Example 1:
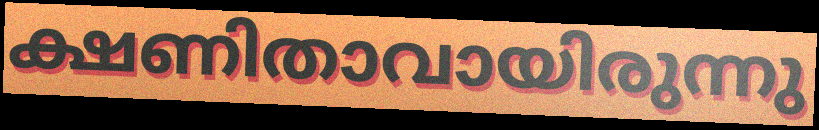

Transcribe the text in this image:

ക്ഷണിതാവായിരുന്നു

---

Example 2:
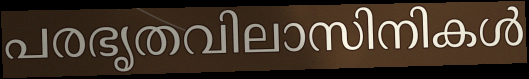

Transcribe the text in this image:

പരഭൃതവിലാസിനികൾ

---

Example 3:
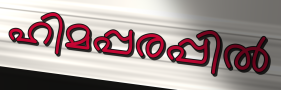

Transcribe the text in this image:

ഹിമപ്പരപ്പിൽ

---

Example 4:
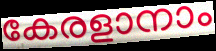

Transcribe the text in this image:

കേരളാനാം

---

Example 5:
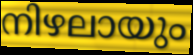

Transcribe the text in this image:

നിഴലായും